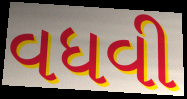
વધવી